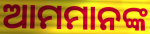
ଆମମାନଙ୍କ